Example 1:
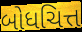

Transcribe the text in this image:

બોધચિત્ત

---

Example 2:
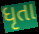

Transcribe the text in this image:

ધૃતા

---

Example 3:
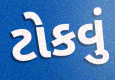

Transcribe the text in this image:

ટોકવું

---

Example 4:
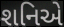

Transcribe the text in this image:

શનિએ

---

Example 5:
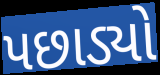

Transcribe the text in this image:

પછાડ્યો